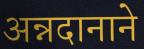
अन्नदानाने